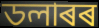
ডলাৰৰ